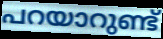
പറയാറുണ്ട്